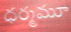
ధర్మమూ